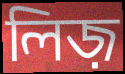
লিজ়